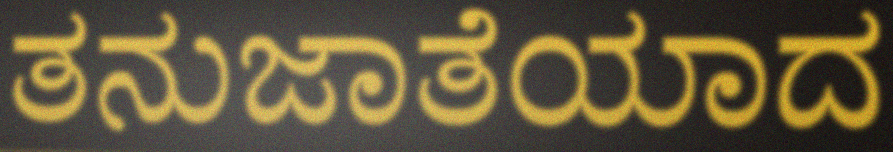
ತನುಜಾತೆಯಾದ